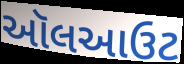
ઑલઆઉટ